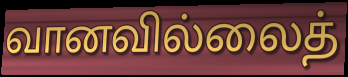
வானவில்லைத்